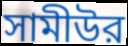
সামীউর